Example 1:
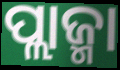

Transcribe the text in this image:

ପ୍ଲାଜ୍ମା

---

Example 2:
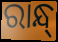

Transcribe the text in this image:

ରାନ୍ଧ୍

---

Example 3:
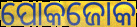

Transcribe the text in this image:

ପୋକଜୋକ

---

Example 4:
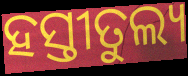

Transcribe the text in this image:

ହସ୍ତୀତୁଲ୍ୟ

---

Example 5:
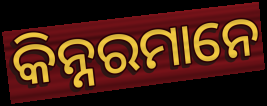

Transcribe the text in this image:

କିନ୍ନରମାନେ